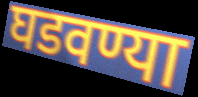
घडवण्या